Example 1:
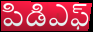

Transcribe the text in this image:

పిడిఎఫ్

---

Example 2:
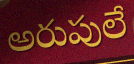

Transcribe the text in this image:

అరుపులే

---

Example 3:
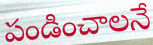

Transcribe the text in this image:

పండించాలనే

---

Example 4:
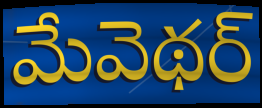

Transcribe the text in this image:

మేవెథర్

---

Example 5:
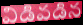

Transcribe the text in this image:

విడివడిన